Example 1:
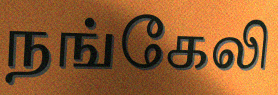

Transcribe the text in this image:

நங்கேலி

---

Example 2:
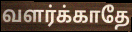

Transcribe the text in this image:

வளர்க்காதே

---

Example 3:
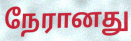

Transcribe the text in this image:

நேரானது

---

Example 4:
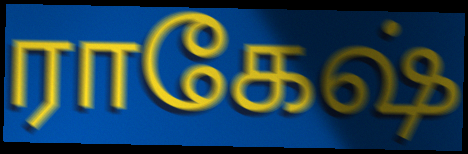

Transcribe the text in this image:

ராகேஷ்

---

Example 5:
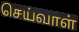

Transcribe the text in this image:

செய்வாள்